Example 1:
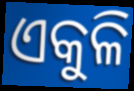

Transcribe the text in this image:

ଏକୁଳି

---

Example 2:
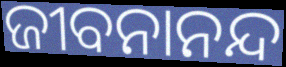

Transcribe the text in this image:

ଜୀବନାନନ୍ଦ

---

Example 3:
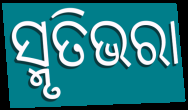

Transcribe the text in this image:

ସ୍ମୃତିଭରା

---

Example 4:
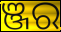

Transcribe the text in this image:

ଞ୍ଜର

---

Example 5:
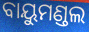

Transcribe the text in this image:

ବାୟୁମଣ୍ଡଲ